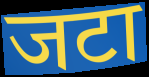
जटा